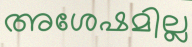
അശേഷമില്ല